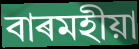
বাৰমহীয়া